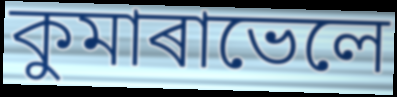
কুমাৰাভেলে